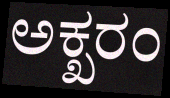
ಅಕ್ಖರಂ